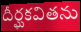
దీర్ఘకవితను